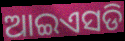
ଆଇଏସଡି